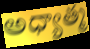
అధ్యాత్మ